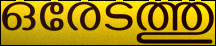
ഒരേടത്തു